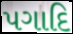
પગાદિ